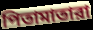
পিতামাতারা